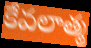
కేవలాత్మ